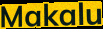
Makalu